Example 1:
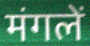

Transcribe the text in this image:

मंगलें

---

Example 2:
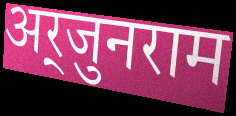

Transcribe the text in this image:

अर्जुनराम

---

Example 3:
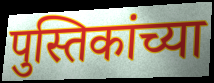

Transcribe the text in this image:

पुस्तिकांच्या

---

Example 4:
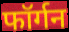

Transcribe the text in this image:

फॉर्गन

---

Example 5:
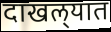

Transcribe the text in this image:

दाखल्यात